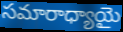
సమారాధ్యాయై